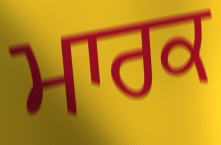
ਮਾਰਕ